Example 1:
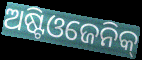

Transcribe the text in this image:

ଅଷ୍ଟିଓଜେନିକ୍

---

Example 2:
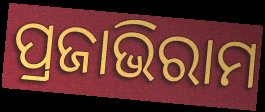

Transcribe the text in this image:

ପ୍ରଜାଭିରାମ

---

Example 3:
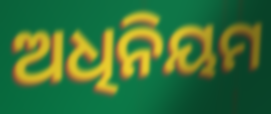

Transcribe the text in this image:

ଅଧିନିୟମ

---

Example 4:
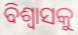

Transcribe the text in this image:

ବିଶ୍ୱାସକୁ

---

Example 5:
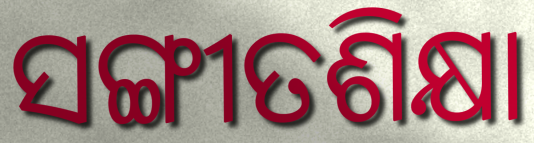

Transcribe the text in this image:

ସଙ୍ଗୀତଶିକ୍ଷା